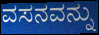
ವಸನವನ್ನು